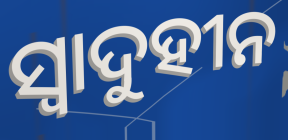
ସ୍ୱାଦୁହୀନ